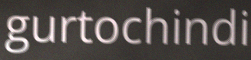
gurtochindi